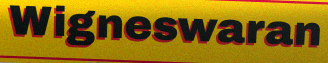
Wigneswaran